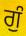
ਗੁੰ